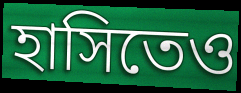
হাসিতেও